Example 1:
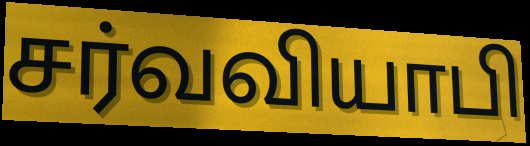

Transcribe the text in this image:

சர்வவியாபி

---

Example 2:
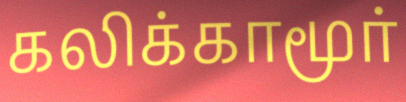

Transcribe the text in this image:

கலிக்காமூர்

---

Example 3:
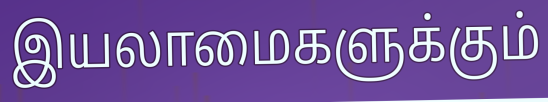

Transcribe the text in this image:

இயலாமைகளுக்கும்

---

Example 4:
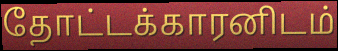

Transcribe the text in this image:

தோட்டக்காரனிடம்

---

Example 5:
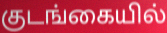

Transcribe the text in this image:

குடங்கையில்